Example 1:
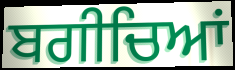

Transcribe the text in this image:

ਬਗੀਚਿਆਂ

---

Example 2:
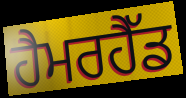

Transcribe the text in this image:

ਹੈਮਰਹੈੱਡ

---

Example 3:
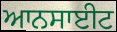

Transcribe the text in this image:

ਆਨਸਾਈਟ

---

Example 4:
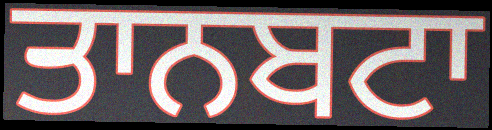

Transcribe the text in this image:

ਤਾਨਬਟਾ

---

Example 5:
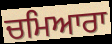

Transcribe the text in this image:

ਚਮਿਆਰਾ